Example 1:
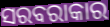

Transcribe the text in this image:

ସରବରାକାର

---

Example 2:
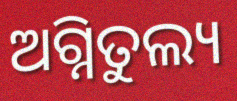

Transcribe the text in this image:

ଅଗ୍ନିତୁଲ୍ୟ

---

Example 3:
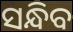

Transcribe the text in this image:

ସନ୍ଧିବ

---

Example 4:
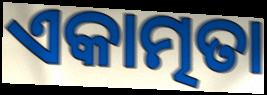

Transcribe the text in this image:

ଏକାତ୍ମତା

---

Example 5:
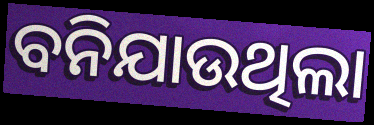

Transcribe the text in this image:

ବନିଯାଉଥିଲା